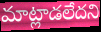
మాట్లాడలేదని